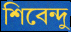
শিবেন্দু